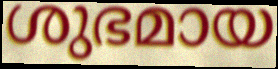
ശുഭമായ